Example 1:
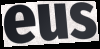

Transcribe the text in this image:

eus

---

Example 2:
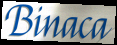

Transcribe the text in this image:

Binaca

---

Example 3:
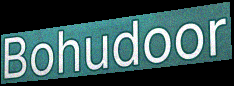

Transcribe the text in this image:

Bohudoor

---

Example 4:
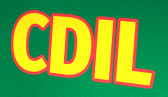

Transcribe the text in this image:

CDIL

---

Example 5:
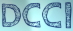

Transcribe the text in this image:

DCCI